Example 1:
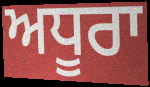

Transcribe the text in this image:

ਅਧੂਰਾ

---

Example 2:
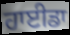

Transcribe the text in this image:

ਹਾਈਡਾ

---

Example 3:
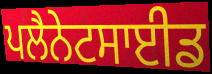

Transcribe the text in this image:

ਪਲੈਨੇਟਸਾਈਡ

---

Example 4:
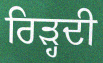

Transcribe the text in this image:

ਰਿੜ੍ਹਦੀ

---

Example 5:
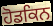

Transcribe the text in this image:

ਹੋਡਕਿਨ